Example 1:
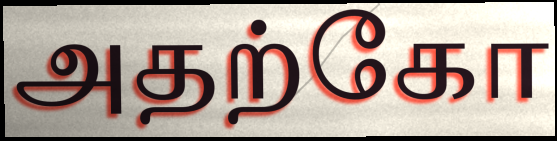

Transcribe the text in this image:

அதற்கோ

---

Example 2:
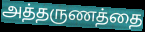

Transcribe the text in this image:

அத்தருணத்தை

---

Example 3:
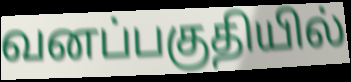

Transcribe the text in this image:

வனப்பகுதியில்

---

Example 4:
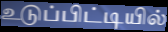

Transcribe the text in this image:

உடுப்பிட்டியில்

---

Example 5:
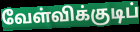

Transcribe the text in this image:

வேள்விக்குடிப்